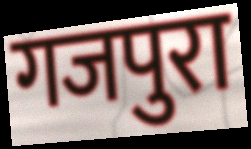
गजपुरा